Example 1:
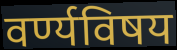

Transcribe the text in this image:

वर्ण्यविषय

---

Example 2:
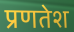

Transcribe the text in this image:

प्रणतेश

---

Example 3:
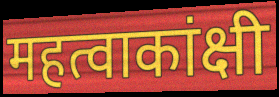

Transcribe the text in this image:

महत्वाकांक्षी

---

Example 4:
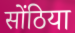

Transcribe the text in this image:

सोंठिया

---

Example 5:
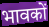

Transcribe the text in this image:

भावकों